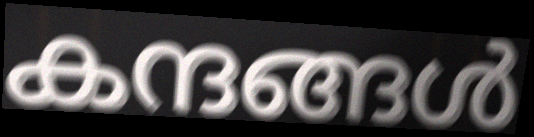
കന്ദങ്ങൾ